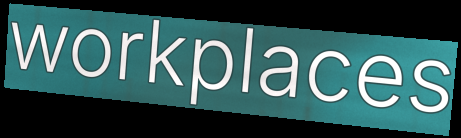
workplaces